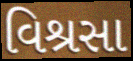
વિશ્રસા